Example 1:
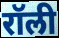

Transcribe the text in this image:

रॉली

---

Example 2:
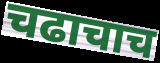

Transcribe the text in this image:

चढाचाच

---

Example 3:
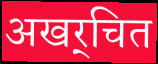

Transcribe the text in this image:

अखर्चित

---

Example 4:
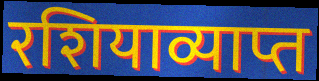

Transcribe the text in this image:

रशियाव्याप्त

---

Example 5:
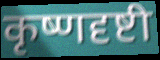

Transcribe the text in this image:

कृष्णदृष्टी